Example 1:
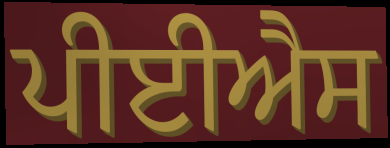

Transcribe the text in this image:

ਪੀਈਐਸ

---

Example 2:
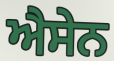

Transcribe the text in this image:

ਐਸੇਨ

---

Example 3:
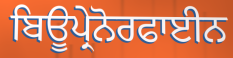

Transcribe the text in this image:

ਬਿਊਪ੍ਰੇਨੋਰਫਾਈਨ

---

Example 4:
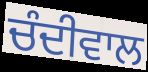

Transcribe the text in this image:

ਚੰਦੀਵਾਲ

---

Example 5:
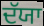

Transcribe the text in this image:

ਦੱਯਾ